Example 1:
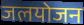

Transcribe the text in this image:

जलयोजन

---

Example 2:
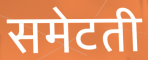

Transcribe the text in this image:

समेटती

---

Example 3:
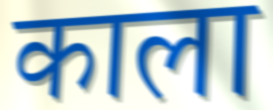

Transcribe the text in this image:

काला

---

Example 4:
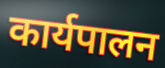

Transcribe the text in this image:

कार्यपालन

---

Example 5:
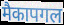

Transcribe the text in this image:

मैकापगल